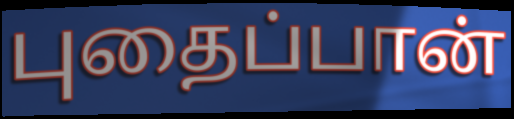
புதைப்பான்